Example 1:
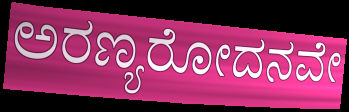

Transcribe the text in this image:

ಅರಣ್ಯರೋದನವೇ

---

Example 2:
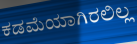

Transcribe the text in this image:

ಕಡಮೆಯಾಗಿರಲಿಲ್ಲ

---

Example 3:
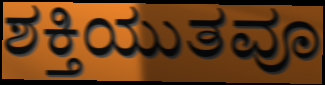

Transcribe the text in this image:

ಶಕ್ತಿಯುತವೂ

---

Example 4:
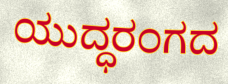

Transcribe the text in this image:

ಯುದ್ಧರಂಗದ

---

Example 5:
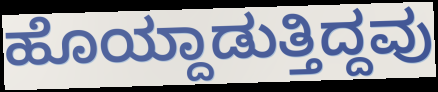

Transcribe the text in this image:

ಹೊಯ್ದಾಡುತ್ತಿದ್ದವು